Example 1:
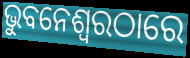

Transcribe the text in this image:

ଭୁବନେଶ୍ଵରଠାରେ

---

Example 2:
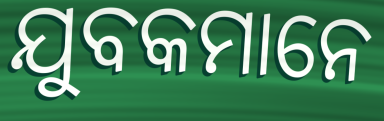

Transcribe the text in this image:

ଯୁବକମାନେ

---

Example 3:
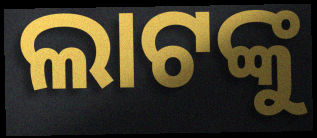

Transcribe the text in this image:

ଲାଟଙ୍କୁ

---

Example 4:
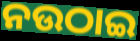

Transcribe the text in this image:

ନଉଠାଇ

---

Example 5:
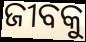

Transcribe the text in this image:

ଜୀବକୁ